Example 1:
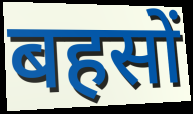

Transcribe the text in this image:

बहसों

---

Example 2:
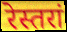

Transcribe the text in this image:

रेस्तरां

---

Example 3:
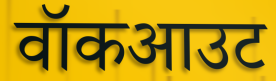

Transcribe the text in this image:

वॉकआउट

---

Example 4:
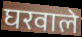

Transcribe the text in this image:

घरवाले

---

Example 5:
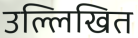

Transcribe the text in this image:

उल्लिखित